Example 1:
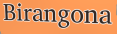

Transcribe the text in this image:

Birangona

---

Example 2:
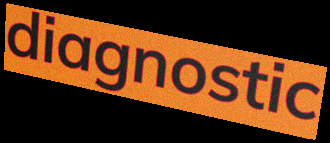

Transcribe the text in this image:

diagnostic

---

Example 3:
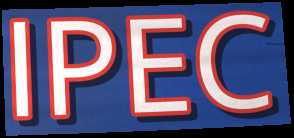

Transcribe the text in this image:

IPEC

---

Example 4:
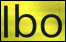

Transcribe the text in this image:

Ibo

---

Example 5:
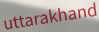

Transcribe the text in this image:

uttarakhand